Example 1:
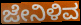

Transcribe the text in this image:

ಜೇನಿಳಿವ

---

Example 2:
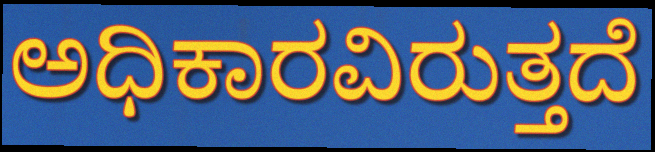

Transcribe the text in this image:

ಅಧಿಕಾರವಿರುತ್ತದೆ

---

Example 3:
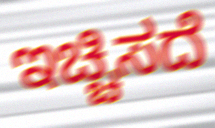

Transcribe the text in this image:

ಇಚ್ಚಿಸದೆ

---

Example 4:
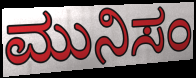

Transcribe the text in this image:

ಮುನಿಸಂ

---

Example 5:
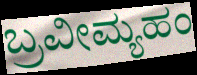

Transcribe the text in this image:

ಬ್ರವೀಮ್ಯಹಂ